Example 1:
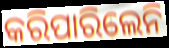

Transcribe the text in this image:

କରିପାରିଲେନି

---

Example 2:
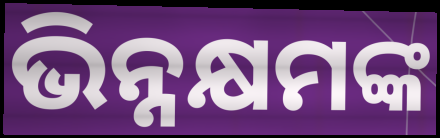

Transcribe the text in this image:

ଭିନ୍ନକ୍ଷମଙ୍କ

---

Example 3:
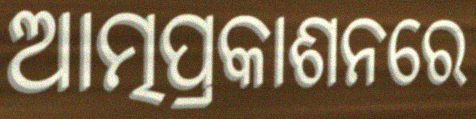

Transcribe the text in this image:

ଆତ୍ମପ୍ରକାଶନରେ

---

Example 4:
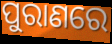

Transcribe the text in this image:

ପୁରାଣରେ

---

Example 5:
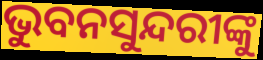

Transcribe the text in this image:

ଭୁବନସୁନ୍ଦରୀଙ୍କୁ